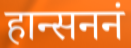
हान्सननं